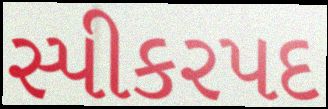
સ્પીકરપદ